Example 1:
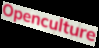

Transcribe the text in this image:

Openculture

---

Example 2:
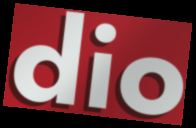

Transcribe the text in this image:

dio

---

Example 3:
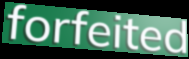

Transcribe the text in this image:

forfeited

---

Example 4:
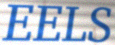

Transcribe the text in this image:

EELS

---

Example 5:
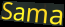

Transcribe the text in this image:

Sama